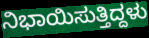
ನಿಭಾಯಿಸುತ್ತಿದ್ದಳು